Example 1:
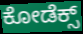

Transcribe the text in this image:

ಕೋಡೆಕ್ಸ್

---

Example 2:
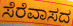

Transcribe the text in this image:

ಸೆರೆವಾಸದ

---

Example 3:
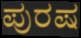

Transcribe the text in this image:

ಪುರಷ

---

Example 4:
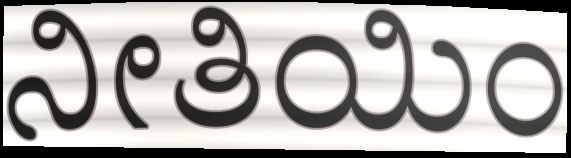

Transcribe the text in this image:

ನೀತಿಯಿಂ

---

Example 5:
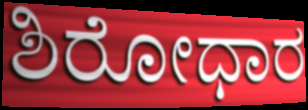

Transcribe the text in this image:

ಶಿರೋಧಾರ